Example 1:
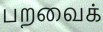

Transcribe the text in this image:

பறவைக்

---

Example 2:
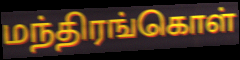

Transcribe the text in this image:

மந்திரங்கொள்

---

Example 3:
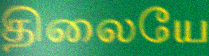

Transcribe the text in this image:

திலையே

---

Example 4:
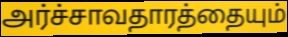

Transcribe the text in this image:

அர்ச்சாவதாரத்தையும்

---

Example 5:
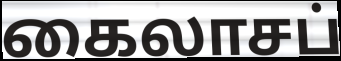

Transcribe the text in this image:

கைலாசப்